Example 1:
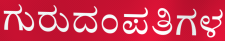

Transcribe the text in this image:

ಗುರುದಂಪತಿಗಳ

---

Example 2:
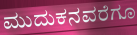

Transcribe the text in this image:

ಮುದುಕನವರೆಗೂ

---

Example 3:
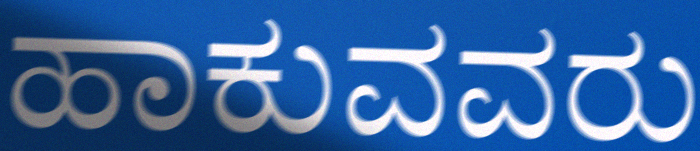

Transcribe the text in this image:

ಹಾಕುವವರು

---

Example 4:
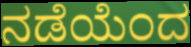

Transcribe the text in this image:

ನಡೆಯೆಂದ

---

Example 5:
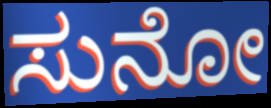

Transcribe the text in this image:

ಸುನೋ